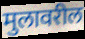
मुलावरील